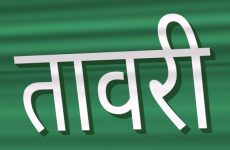
तावरी